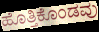
ಹೊತ್ತಿಕೊಂಡವು